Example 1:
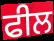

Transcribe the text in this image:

ਫੀਲ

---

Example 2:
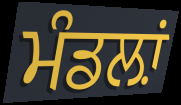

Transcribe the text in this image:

ਮੰਡਲ਼ਾਂ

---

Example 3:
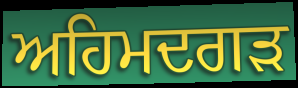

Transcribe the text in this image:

ਅਹਿਮਦਗੜ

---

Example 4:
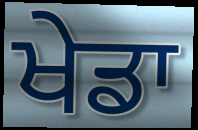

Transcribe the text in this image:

ਖੇਡਾ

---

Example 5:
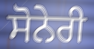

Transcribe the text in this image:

ਸੋਨੇਰੀ